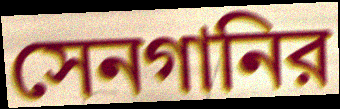
সেনগানির